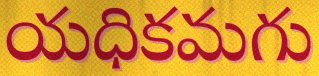
యధికమగు